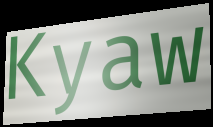
Kyaw